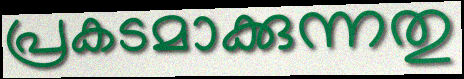
പ്രകടമാക്കുന്നതു